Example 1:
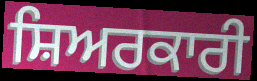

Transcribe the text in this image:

ਸ਼ਿਅਰਕਾਰੀ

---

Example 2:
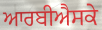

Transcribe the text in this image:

ਆਰਬੀਐਸਕੇ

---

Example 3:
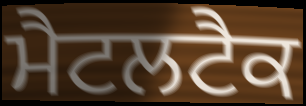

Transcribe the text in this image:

ਮੈਟਲਟੈਕ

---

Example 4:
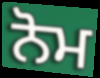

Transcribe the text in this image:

ਨੋਮ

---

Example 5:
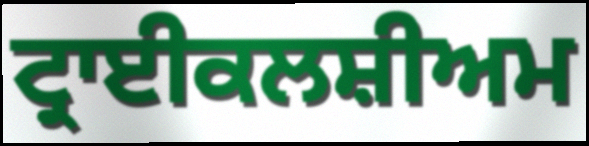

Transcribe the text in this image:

ਟ੍ਰਾਈਕਲਸ਼ੀਅਮ